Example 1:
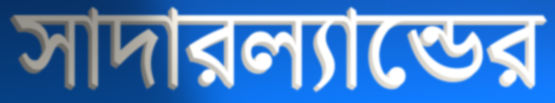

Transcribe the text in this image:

সাদারল্যান্ডের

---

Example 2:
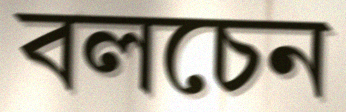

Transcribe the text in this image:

বলচেন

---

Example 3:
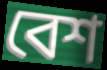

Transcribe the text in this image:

বেশ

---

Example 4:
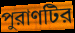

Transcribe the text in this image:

পুরাণটির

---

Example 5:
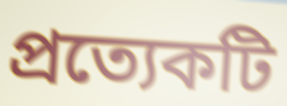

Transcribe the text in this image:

প্রত্যেকটি